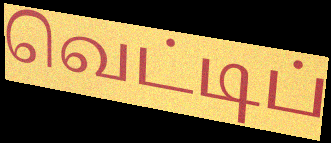
வெட்டிப்